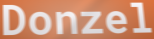
Donzel